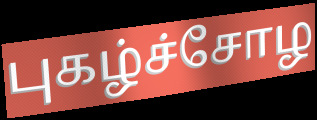
புகழ்ச்சோழ